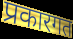
प्रकारगत